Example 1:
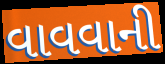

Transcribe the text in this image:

વાવવાની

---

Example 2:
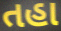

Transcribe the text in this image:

તહા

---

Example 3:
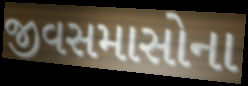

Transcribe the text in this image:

જીવસમાસોના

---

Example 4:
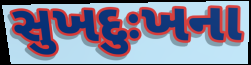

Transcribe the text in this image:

સુખદુઃખના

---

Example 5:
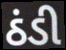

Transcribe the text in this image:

ઠંડી